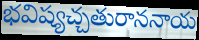
భవిష్యచ్చతురాననాయ